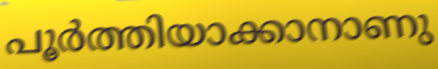
പൂർത്തിയാക്കാനാണു